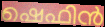
ഷെഫിൻ